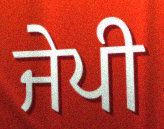
ਜੇਪੀ